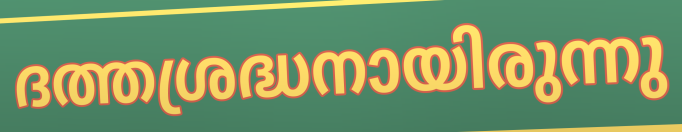
ദത്തശ്രദ്ധനായിരുന്നു